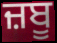
ਜ਼ਬੂ